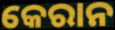
କେରାନ